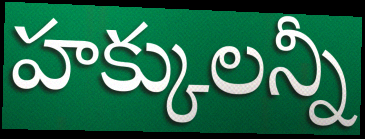
హక్కులన్నీ